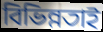
বিভিন্নতাই